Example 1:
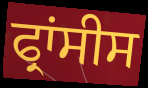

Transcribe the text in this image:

ਫ੍ਰਾਂਸੀਸ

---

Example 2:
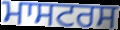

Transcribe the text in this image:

ਮਾਸਟਰਸ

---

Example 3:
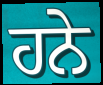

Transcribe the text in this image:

ਹਨੇ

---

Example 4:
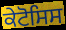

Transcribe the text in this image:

ਕੇਟੋਸਿਸ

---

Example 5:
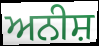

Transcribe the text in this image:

ਅਨੀਸ਼